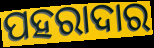
ପହରାଦାର